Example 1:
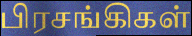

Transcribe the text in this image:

பிரசங்கிகள்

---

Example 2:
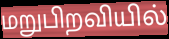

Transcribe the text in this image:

மறுபிறவியில்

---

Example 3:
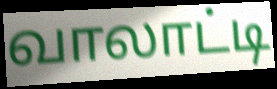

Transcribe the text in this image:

வாலாட்டி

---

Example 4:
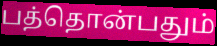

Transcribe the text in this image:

பத்தொன்பதும்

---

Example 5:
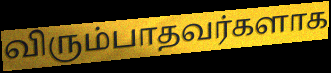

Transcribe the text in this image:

விரும்பாதவர்களாக